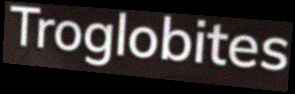
Troglobites